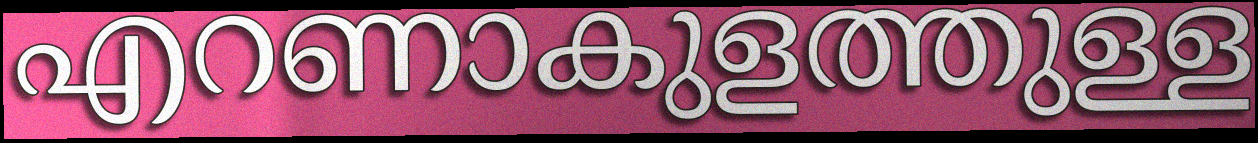
എറണാകുളത്തുള്ള